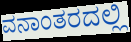
ವನಾಂತರದಲ್ಲಿ